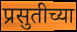
प्रसुतीच्या